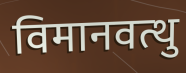
विमानवत्थु